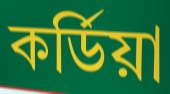
কর্ডিয়া